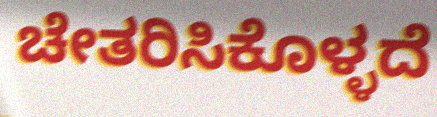
ಚೇತರಿಸಿಕೊಳ್ಳದೆ